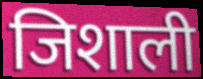
जिशाली